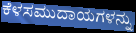
ಕೆಳಸಮುದಾಯಗಳನ್ನು